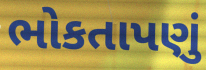
ભોકતાપણું